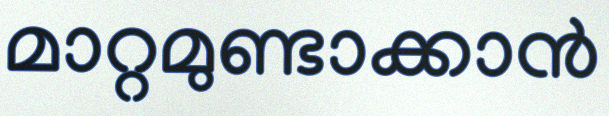
മാറ്റമുണ്ടാക്കാൻ